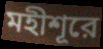
মহীশূরে